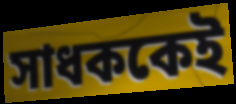
সাধককেই